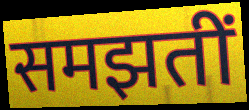
समझतीं